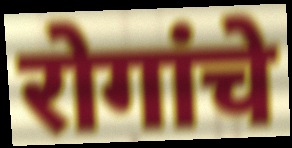
रोगांचे